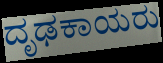
ದೃಢಕಾಯರು